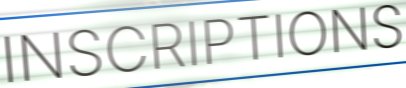
INSCRIPTIONS